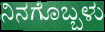
ನಿನಗೊಬ್ಬಳು